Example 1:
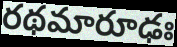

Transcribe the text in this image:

రథమారూఢః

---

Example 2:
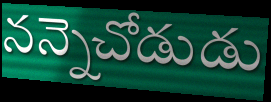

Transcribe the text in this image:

నన్నెచోడుడు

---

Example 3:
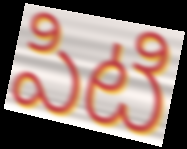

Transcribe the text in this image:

పిటి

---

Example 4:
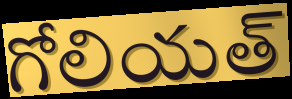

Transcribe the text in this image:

గోలియత్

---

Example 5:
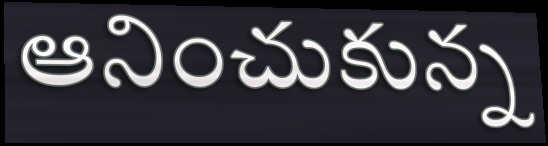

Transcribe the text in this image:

ఆనించుకున్న